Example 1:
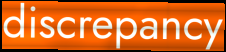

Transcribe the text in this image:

discrepancy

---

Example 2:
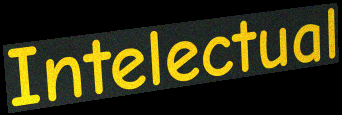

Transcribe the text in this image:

Intelectual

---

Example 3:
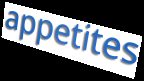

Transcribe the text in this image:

appetites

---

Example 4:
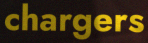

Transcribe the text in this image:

chargers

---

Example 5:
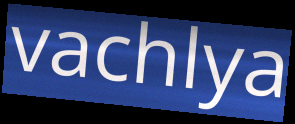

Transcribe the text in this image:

vachlya